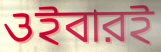
ওইবারই